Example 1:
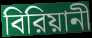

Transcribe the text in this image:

বিরিয়ানী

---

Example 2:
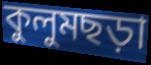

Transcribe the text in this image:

কুলুমছড়া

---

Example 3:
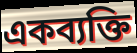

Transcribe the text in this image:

একব্যক্তি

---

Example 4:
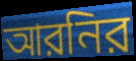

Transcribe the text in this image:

আরনির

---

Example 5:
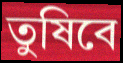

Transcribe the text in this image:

তুষিবে